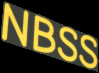
NBSS